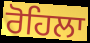
ਰੋਹਿਲਾ